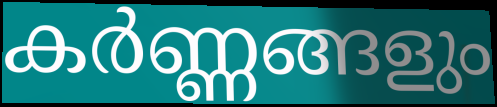
കർണ്ണങ്ങളും